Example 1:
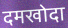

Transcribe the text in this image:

दमखोदा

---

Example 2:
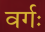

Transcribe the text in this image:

वर्गः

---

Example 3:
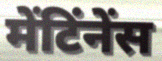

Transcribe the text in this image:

मेंटिंनेंस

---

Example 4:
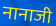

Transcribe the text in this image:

नानाजी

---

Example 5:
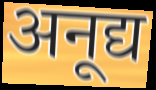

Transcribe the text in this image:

अनूद्य